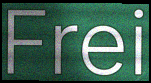
Frei